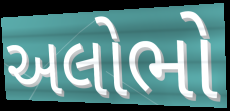
અલોભો